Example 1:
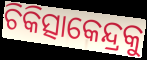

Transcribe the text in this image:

ଚିକିତ୍ସାକେନ୍ଦ୍ରକୁ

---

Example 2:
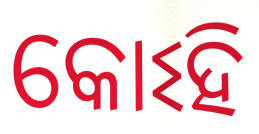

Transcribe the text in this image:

କୋଽହି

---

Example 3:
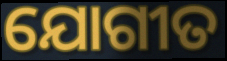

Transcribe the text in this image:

ଯୋଗୀତ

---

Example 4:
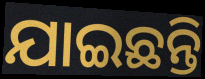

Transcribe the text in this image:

ଯାଇଛନ୍ତି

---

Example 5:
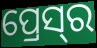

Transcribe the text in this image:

ପ୍ରେସ୍‌ର